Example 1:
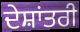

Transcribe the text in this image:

ਦੇਸ਼ਾਂਤਰੀ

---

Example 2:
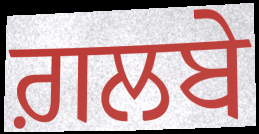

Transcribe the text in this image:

ਗ਼ਲਬੇ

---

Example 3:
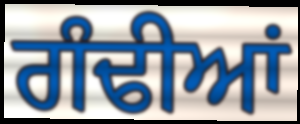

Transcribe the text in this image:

ਗੰਢੀਆਂ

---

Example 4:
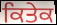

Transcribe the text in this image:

ਕਿਤੇਕ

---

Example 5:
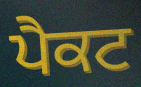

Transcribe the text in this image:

ਪੈਕਟ